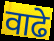
वाढे